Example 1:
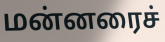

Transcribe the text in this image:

மன்னரைச்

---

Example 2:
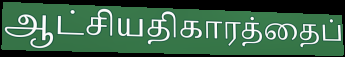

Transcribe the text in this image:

ஆட்சியதிகாரத்தைப்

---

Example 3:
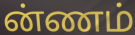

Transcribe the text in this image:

ன்ணம்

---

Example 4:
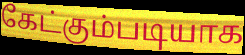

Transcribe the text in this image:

கேட்கும்படியாக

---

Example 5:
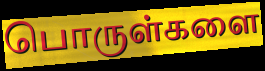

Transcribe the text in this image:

பொருள்களை